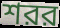
শরর